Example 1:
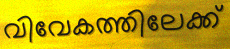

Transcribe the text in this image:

വിവേകത്തിലേക്ക്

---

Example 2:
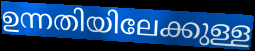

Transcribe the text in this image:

ഉന്നതിയിലേക്കുള്ള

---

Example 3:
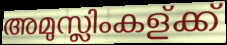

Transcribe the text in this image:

അമുസ്ലിംകള്ക്ക്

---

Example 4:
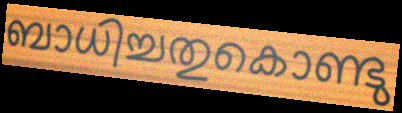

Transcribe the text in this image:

ബാധിച്ചതുകൊണ്ടു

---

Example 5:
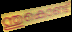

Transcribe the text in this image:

ന്തുകൊണ്ട്